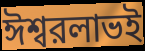
ঈশ্বরলাভই